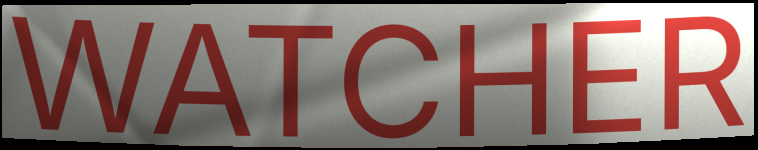
WATCHER